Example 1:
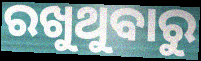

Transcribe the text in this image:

ରଖୁଥୁବାରୁ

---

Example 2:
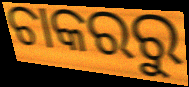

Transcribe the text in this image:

ଚାକରରୁ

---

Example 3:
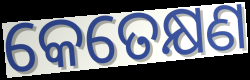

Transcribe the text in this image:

କେତେକ୍ଷଣ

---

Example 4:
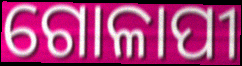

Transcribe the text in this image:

ଗୋଳାପୀ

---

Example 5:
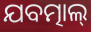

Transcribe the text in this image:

ଯବତ୍ମାଲ୍